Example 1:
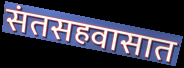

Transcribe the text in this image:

संतसहवासात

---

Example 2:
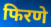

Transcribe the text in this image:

फिरणे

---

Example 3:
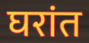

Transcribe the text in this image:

घरांत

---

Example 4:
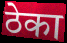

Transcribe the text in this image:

ठेका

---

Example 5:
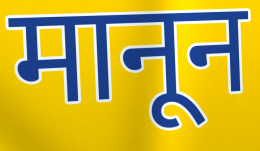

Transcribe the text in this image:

मानून